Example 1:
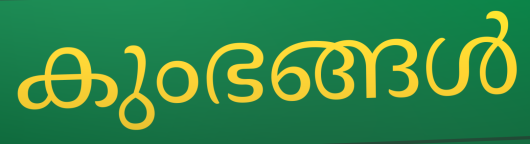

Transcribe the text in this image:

കുംഭങ്ങൾ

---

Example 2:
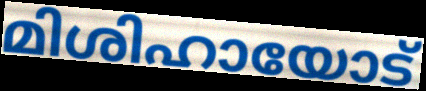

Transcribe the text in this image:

മിശിഹായോട്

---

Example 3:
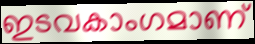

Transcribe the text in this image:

ഇടവകാംഗമാണ്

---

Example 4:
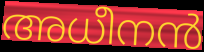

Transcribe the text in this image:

അധീനൻ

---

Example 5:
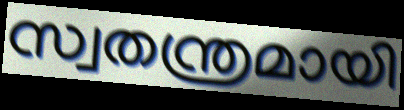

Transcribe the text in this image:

സ്വതന്ത്രമായി